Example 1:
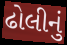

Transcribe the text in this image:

ઢોલીનું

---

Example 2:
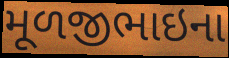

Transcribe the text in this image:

મૂળજીભાઇના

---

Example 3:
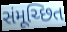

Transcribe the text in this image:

સંમૂચ્છિત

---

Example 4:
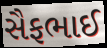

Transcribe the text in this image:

સૈફભાઈ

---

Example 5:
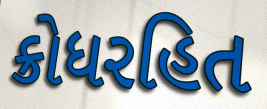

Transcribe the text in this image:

ક્રોધરહિત